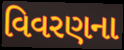
વિવરણના